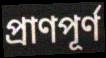
প্রাণপূর্ণ